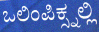
ಒಲಿಂಪಿಕ್ಸ್ನಲ್ಲಿ